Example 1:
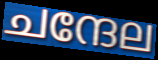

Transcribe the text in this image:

ചന്ദേല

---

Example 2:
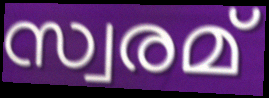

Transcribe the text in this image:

സ്വരമ്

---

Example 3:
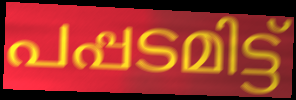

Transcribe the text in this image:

പപ്പടമിട്ട്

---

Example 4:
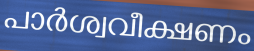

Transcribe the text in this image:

പാർശ്വവീക്ഷണം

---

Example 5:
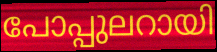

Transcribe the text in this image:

പോപ്പുലറായി